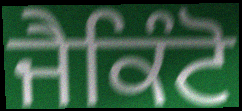
ਜੈਕਿੰਟੋ